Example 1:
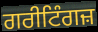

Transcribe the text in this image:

ਗਰੀਟਿੰਗਜ਼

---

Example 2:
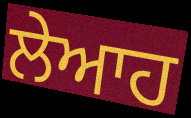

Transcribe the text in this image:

ਲੇਆਹ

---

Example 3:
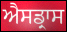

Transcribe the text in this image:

ਐਸਡ੍ਰਾਸ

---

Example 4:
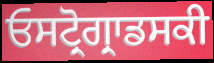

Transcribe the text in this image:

ਓਸਟ੍ਰੋਗ੍ਰਾਡਸਕੀ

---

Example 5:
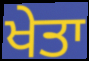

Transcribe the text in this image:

ਖੇਤਾ